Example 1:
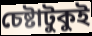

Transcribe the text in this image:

চেষ্টাটুকুই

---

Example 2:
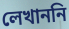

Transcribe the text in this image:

লেখাননি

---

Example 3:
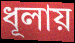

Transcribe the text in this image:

ধূলায়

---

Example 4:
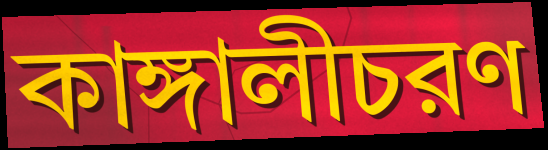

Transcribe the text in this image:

কাঙ্গালীচরণ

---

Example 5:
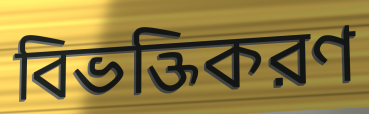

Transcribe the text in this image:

বিভক্তিকরণ